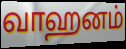
வாஹனம்